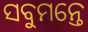
ସବୁମନ୍ତେ